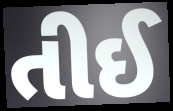
તીઈ